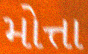
મોત્તા